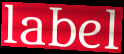
label